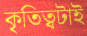
কৃতিত্বটাই